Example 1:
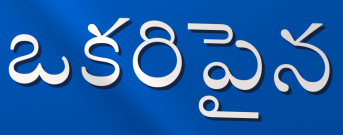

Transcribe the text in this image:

ఒకరిపైన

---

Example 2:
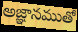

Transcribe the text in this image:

అజ్ఞానముతో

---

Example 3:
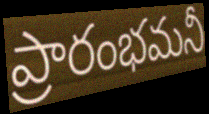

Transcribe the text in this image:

ప్రారంభమనీ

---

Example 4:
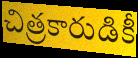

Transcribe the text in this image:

చిత్రకారుడికీ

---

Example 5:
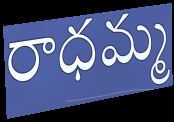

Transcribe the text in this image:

రాధమ్మ